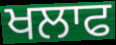
ਖਲਾਫ